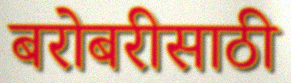
बरोबरीसाठी